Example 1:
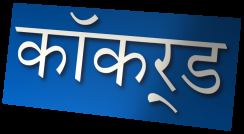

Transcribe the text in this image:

कॉकर्ड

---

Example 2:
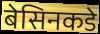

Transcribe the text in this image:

बेसिनकडे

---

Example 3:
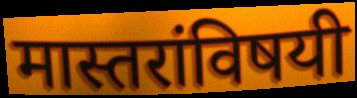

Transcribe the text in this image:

मास्तरांविषयी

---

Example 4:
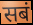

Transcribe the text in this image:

सबं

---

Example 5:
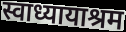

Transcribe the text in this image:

स्वाध्यायाश्रम